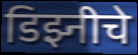
डिझ्नीचे